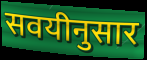
सवयीनुसार